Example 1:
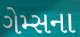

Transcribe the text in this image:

ગેમ્સના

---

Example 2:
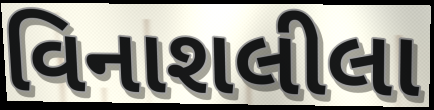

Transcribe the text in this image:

વિનાશલીલા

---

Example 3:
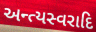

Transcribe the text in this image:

અન્ત્યસ્વરાદિ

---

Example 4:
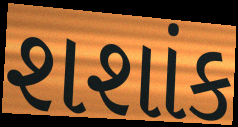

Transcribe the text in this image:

શશાંક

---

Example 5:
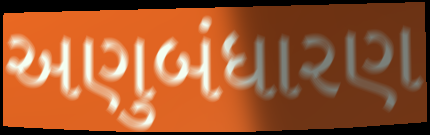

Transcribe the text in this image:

અણુબંધારણ